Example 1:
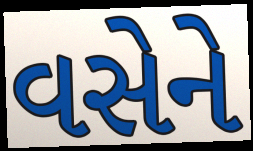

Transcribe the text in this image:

વસેને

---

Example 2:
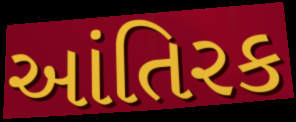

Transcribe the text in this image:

આંતિરક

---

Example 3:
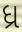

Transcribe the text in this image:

ધ્ર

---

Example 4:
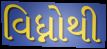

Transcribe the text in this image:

વિધ્નોથી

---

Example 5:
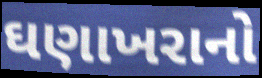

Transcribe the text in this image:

ઘણાખરાનો